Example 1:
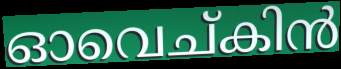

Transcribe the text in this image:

ഓവെച്കിൻ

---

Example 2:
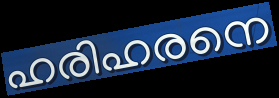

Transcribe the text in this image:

ഹരിഹരനെ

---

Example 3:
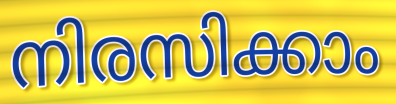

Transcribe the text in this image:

നിരസിക്കാം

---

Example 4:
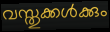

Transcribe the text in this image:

വസ്തുക്കൾക്കും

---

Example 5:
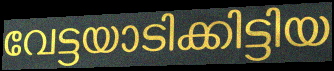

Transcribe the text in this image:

വേട്ടയാടിക്കിട്ടിയ